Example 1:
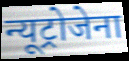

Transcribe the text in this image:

न्यूट्रोजेना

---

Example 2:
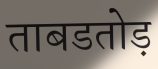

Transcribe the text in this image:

ताबडतोड़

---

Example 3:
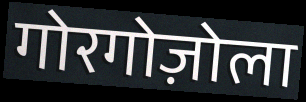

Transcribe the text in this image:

गोरगोज़ोला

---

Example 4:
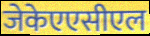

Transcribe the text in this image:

जेकेएएसीएल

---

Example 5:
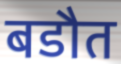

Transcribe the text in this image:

बडौत